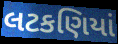
લટકણિયાં